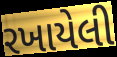
રખાયેલી